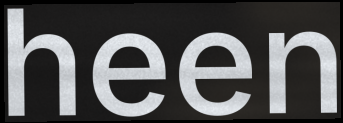
heen